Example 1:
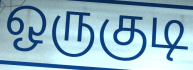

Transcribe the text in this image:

ஒருகுடி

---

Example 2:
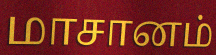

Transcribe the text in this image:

மாசானம்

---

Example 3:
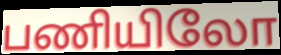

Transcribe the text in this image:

பணியிலோ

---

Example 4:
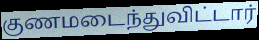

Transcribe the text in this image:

குணமடைந்துவிட்டார்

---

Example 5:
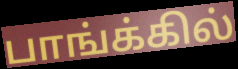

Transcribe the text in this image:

பாங்க்கில்